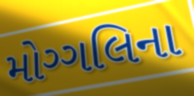
મોગ્ગલિના